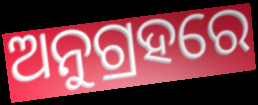
ଅନୁଗ୍ରହରେ